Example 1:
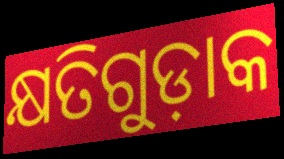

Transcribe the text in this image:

କ୍ଷତିଗୁଡ଼ାକ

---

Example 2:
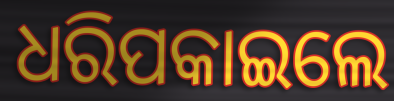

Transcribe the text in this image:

ଧରିପକାଇଲେ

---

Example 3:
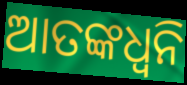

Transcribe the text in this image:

ଆତଙ୍କଧ୍ଵନି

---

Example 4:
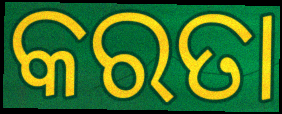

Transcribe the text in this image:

କରତା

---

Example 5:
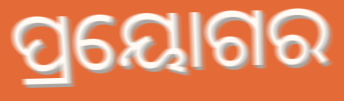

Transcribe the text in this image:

ପ୍ରୟୋଗର